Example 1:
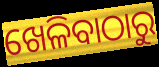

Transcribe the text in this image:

ଖେଳିବାଠାରୁ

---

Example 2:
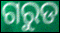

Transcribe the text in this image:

ଗରୁଡ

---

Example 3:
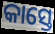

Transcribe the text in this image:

କାସ୍ତେ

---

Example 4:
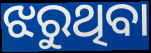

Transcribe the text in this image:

ଝରୁଥିବା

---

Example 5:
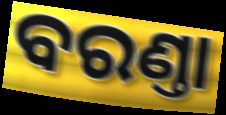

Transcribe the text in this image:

ବରଣ୍ତା